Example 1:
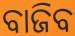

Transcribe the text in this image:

ବାଜିବ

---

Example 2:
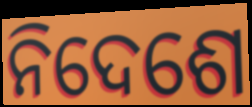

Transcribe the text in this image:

ନିଦେଶେ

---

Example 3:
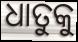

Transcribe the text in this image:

ଧାତୁକୁ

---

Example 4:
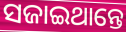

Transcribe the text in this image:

ସଜାଇଥାନ୍ତେ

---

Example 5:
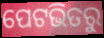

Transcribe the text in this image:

ପେଟଭିତରୁ